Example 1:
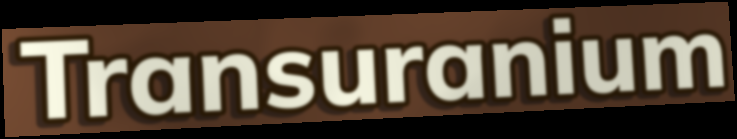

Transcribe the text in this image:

Transuranium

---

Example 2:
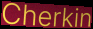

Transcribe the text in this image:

Cherkin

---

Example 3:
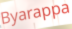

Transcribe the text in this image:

Byarappa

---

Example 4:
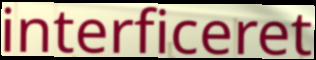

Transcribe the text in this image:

interficeret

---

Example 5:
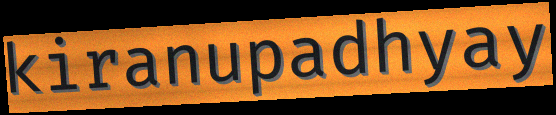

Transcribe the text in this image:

kiranupadhyay